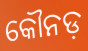
କୌନଡ଼